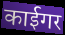
काईगर